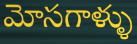
మోసగాళ్ళు